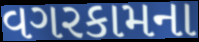
વગરકામના